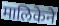
मालिकेने